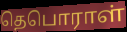
தெபொராள்